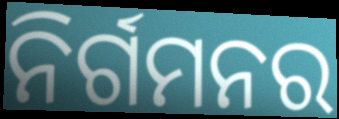
ନିର୍ଗମନର